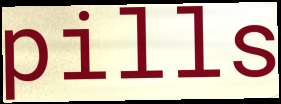
pills